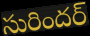
సురిందర్